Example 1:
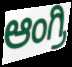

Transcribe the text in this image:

ಆಂಗ್ರಿ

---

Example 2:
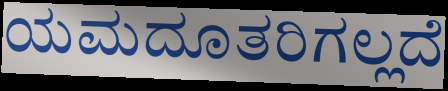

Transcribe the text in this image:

ಯಮದೂತರಿಗಲ್ಲದೆ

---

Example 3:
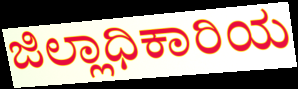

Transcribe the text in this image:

ಜಿಲ್ಲಾಧಿಕಾರಿಯ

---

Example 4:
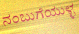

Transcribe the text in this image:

ನಂಬುಗೆಯುಳ್ಳ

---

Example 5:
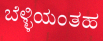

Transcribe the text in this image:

ಬೆಳ್ಳಿಯಂತಹ